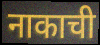
नाकाची